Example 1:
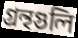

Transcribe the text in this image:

গ্রন্থগুলি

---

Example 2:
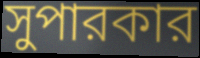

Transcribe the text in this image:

সুপারকার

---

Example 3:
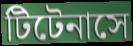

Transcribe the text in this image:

টিটেনাসে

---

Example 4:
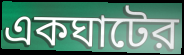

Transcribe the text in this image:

একঘাটের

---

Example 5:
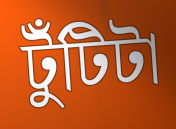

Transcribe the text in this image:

টুঁটিটা